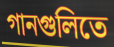
গানগুলিতে